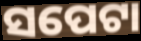
ସପେଟା